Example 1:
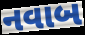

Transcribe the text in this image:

નવાબ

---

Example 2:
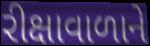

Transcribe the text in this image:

રીક્ષાવાળાને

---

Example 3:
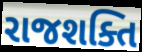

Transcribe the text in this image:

રાજશક્તિ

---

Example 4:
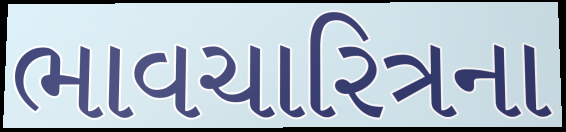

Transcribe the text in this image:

ભાવચારિત્રના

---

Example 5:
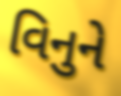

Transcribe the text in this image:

વિનુને